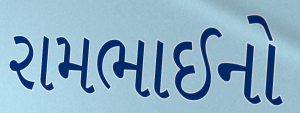
રામભાઈનો